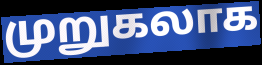
முறுகலாக